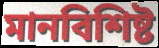
মানবিশিষ্ট